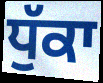
ਧੁੱਕਾ